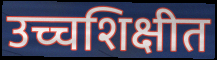
उच्चशिक्षीत